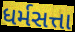
ધર્મસત્તા